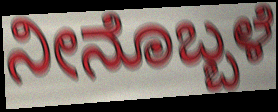
ನೀನೊಬ್ಬಳೆ